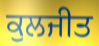
ਕੁਲਜੀਤ